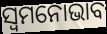
ସ୍ୱମନୋଭାବ